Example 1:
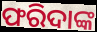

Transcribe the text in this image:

ଫରିଦାଙ୍କ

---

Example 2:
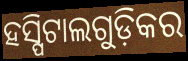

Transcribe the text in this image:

ହସ୍ପିଟାଲଗୁଡ଼ିକର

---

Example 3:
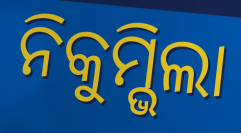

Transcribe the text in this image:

ନିକୁମ୍ଭିଲା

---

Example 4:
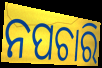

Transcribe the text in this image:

ନପଚାରି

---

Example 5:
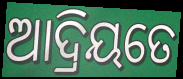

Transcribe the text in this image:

ଆଦ୍ରିୟତେ